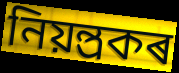
নিয়ন্ত্ৰকৰ